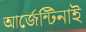
আর্জেন্টিনাই